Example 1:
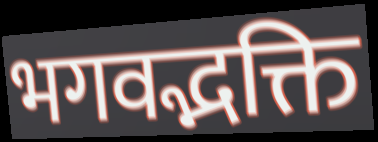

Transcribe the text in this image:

भगवद्भक्ति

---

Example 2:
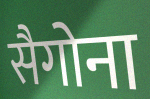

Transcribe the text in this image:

सैगोना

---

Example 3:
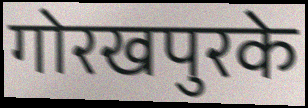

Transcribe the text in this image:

गोरखपुरके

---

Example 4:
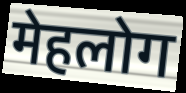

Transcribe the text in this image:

मेहलोग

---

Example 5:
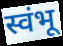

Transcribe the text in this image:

स्वंभू